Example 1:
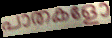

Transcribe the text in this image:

പാതകളോ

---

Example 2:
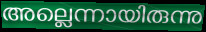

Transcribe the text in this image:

അല്ലെന്നായിരുന്നു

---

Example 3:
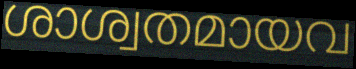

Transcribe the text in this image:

ശാശ്വതമായവ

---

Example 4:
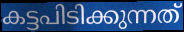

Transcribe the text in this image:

കട്ടപിടിക്കുന്നത്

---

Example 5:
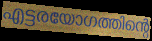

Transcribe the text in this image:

എട്ടരയോഗത്തിന്റെ